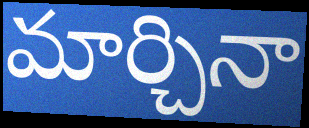
మార్చినా